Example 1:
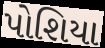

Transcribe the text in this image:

પોશિયા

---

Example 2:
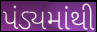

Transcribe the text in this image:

પંડ્યમાંથી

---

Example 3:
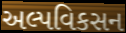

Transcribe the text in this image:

અલ્પવિકસન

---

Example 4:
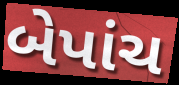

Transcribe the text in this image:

બેપાંચ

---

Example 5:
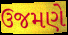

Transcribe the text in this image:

ઉજમણે